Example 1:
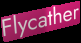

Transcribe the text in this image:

Flycather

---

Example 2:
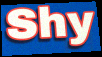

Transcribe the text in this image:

Shy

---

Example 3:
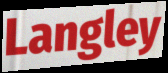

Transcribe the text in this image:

Langley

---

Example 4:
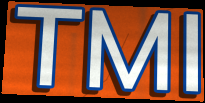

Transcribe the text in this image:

TMI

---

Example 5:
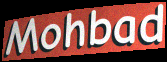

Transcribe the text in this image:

Mohbad